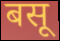
बसू